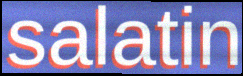
salatin